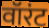
वॉरंट